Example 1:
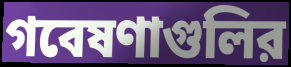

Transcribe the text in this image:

গবেষণাগুলির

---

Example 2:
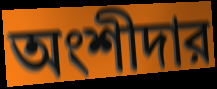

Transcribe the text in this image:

অংশীদার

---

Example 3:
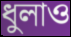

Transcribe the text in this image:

ধুলাও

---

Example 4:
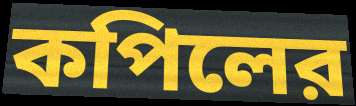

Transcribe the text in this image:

কপিলের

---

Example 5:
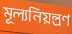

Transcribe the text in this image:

মূল্যনিয়ন্ত্রণ